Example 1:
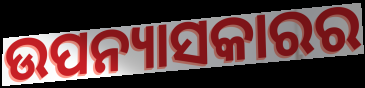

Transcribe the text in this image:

ଉପନ୍ୟାସକାରର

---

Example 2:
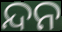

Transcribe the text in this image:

ନ୍ଦନ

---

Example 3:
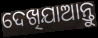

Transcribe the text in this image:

ଦେଖିଯାଆନ୍ତୁ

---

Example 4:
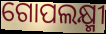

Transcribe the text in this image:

ଗୋପଲକ୍ଷ୍ମୀ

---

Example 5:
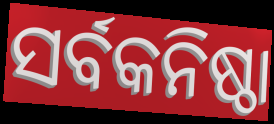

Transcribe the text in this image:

ସର୍ବକନିଷ୍ଠା